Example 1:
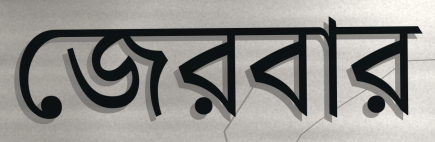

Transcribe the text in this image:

জেরবার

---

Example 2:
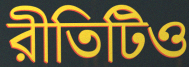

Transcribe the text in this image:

রীতিটিও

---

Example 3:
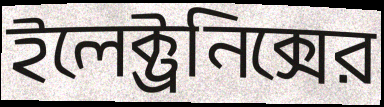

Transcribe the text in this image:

ইলেক্ট্রনিক্সের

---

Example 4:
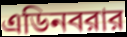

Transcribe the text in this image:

এডিনবরার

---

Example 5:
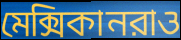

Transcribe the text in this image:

মেক্সিকানরাও